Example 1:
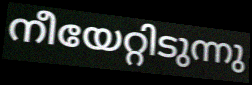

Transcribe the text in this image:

നീയേറ്റിടുന്നു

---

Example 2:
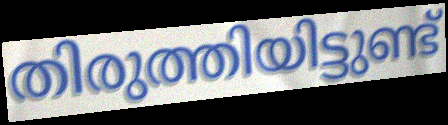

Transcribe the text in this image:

തിരുത്തിയിട്ടുണ്ട്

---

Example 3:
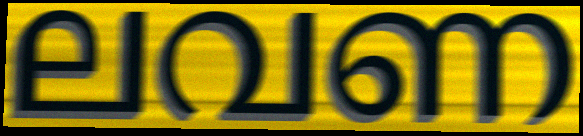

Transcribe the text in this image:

ലവണ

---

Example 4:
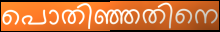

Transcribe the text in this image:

പൊതിഞ്ഞതിനെ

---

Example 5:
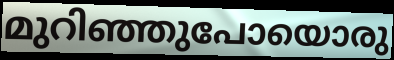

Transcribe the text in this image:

മുറിഞ്ഞുപോയൊരു